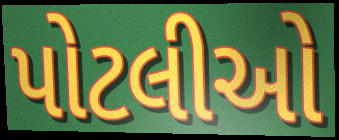
પોટલીઓ